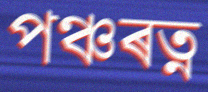
পঞ্চৰত্ন